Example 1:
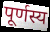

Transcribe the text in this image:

पूर्णस्य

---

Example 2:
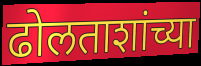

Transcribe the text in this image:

ढोलताशांच्या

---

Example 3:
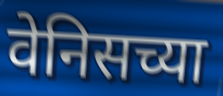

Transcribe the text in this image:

वेनिसच्या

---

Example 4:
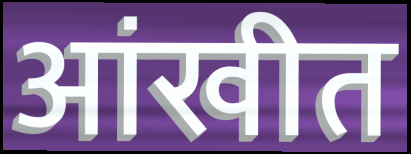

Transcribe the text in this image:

आंखीत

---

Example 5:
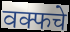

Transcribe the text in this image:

वक्फचे